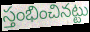
స్తంభించినట్టు